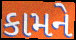
કામને